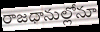
రాజధానుల్లోనూ